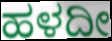
ಹಳದೀ